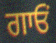
ਗਾਓਂ